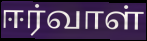
ஈர்வாள்